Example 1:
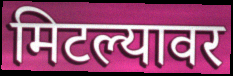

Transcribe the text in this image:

मिटल्यावर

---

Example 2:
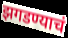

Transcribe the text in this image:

झगडण्याचं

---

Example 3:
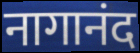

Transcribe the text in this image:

नागानंद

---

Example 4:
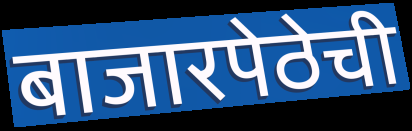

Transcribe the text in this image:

बाजारपेठेची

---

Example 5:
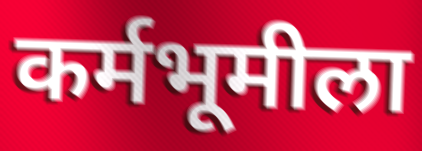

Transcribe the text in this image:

कर्मभूमीला